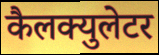
कैलक्युलेटर